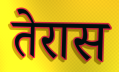
तेरास